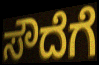
ಸೌದೆಗೆ